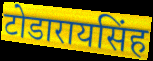
टोडारायसिंह